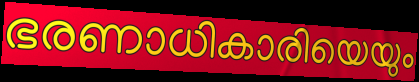
ഭരണാധികാരിയെയും